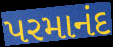
પરમાનંદ